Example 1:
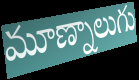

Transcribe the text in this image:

మూణ్నాలుగు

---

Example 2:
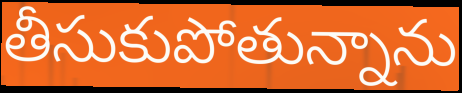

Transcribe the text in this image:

తీసుకుపోతున్నాను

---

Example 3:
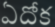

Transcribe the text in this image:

ఏదోక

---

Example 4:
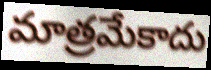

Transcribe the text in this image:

మాత్రమేకాదు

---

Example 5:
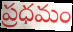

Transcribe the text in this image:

ప్రధమం